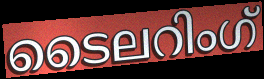
ടൈലറിംഗ്